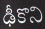
ఢీకొని